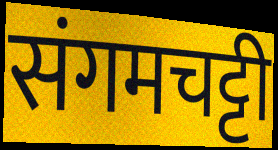
संगमचट्टी